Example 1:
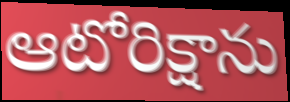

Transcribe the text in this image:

ఆటోరిక్షాను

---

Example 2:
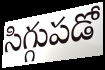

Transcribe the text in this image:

సిగ్గుపడో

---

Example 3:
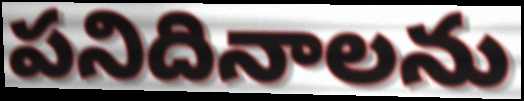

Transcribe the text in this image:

పనిదినాలను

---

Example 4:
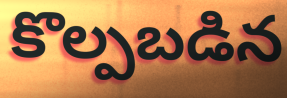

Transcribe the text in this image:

కొల్పబడిన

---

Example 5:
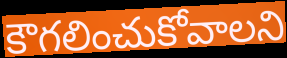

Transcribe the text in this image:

కౌగలించుకోవాలని